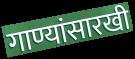
गाण्यांसारखी